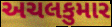
અચલકુમાર